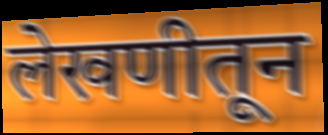
लेखणीतून